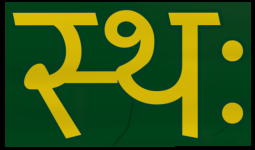
स्थः